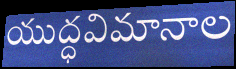
యుద్ధవిమానాల